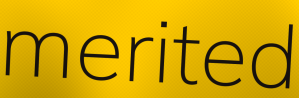
merited